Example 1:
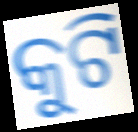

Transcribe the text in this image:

କୁଟି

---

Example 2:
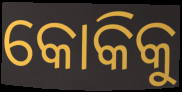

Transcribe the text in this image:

କୋକିକୁ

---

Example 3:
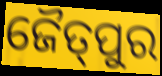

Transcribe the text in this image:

ଜୈତ୍‌ପୁର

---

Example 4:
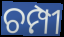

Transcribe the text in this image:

ଚମ୍ପୀ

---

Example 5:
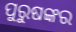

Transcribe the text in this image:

ପୁରୁଷଙ୍କର